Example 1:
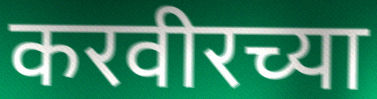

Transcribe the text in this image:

करवीरच्या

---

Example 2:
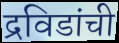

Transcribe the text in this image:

द्रविडांची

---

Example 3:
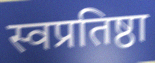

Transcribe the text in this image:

स्वप्रतिष्ठा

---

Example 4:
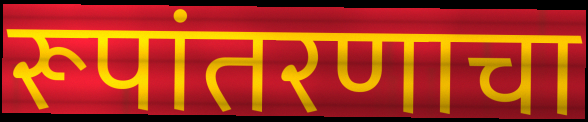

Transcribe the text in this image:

रूपांतरणाचा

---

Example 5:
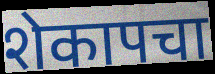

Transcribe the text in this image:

शेकापचा